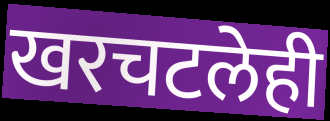
खरचटलेही